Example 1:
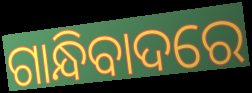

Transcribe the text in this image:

ଗାନ୍ଧିବାଦରେ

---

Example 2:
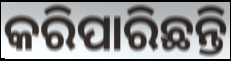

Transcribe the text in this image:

କରିପାରିଛନ୍ତି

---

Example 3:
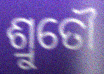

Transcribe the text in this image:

ଶ୍ରୁତୌ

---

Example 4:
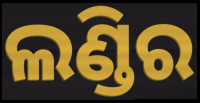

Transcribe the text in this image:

ଲଣ୍ଡିର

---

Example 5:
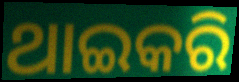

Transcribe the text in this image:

ଥାଇକରି